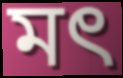
মৎ